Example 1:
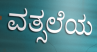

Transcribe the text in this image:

ವತ್ಸಲೆಯ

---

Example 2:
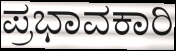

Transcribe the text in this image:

ಪ್ರಭಾವಕಾರಿ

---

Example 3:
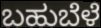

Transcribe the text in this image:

ಬಹುಬೆಳೆ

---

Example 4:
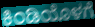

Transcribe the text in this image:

ಕಿಂಡಿಯೊಳಗೆ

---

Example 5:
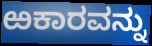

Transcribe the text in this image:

ಱಕಾರವನ್ನು